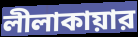
লীলাকায়ার